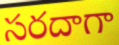
సరదాగా